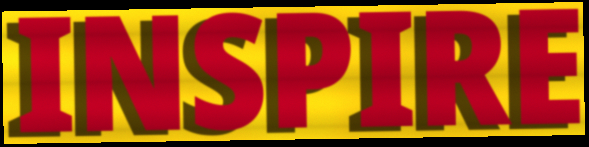
INSPIRE